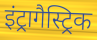
इंट्रागैस्ट्रिक